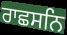
ਰਾਛਸਨਿ